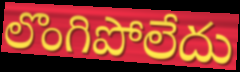
లొంగిపోలేదు